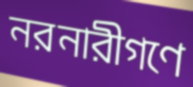
নরনারীগণে